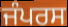
ਜੰਪਰਸ